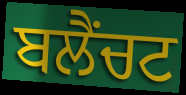
ਬਲੈਂਚਟ